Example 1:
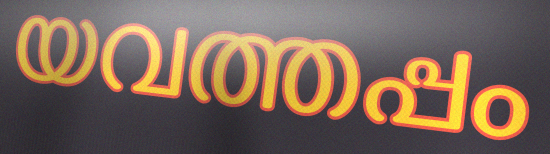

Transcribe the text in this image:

യവത്തപ്പം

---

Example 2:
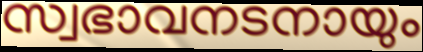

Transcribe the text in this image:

സ്വഭാവനടനായും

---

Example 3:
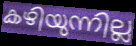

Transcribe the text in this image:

കഴിയുന്നില്ല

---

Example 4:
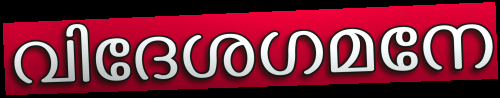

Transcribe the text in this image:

വിദേശഗമനേ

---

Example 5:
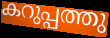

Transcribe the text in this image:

കറുപ്പത്തു